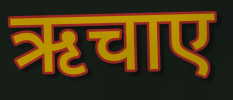
ऋचाए